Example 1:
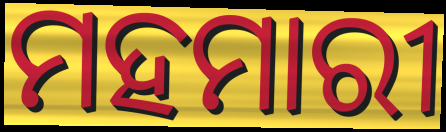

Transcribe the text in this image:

ମହମାରୀ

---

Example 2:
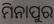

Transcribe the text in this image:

ମିନାପୁର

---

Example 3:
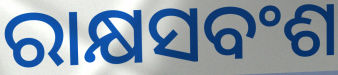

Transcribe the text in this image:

ରାକ୍ଷସବଂଶ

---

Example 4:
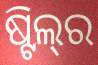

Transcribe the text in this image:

ଷ୍ଟିଲ୍‌ର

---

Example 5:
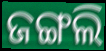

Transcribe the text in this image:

ଜଙ୍ଗଲି